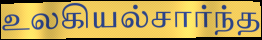
உலகியல்சார்ந்த